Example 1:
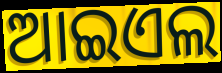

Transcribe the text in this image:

ଆଇଏଲ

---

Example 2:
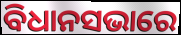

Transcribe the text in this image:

ବିଧାନସଭାରେ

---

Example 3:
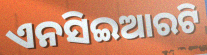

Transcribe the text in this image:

ଏନସିଇଆରଟି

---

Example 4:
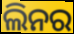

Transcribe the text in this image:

ଲିନର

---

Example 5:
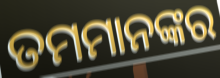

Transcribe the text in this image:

ତମମାନଙ୍କର